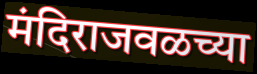
मंदिराजवळच्या